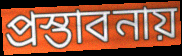
প্রস্তাবনায়